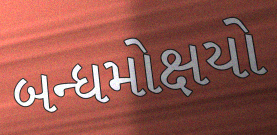
બન્ધમોક્ષયો